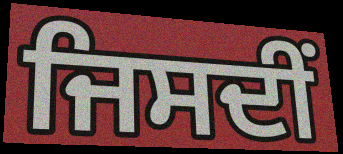
ਜਿਸਦੀਂ